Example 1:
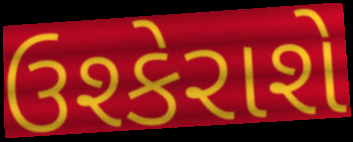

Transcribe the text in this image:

ઉશ્કેરાશે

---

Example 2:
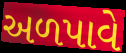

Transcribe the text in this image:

અળપાવે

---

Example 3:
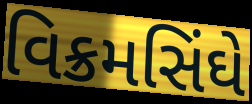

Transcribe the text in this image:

વિક્રમસિંઘે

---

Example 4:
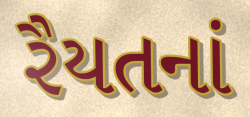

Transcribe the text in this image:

રૈયતનાં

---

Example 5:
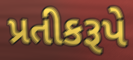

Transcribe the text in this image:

પ્રતીકરૂપે